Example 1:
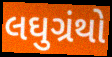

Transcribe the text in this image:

લઘુગ્રંથો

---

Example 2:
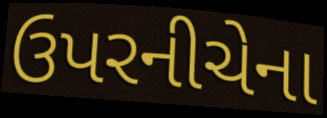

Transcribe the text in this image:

ઉપરનીચેના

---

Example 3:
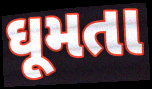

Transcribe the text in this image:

ઘૂમતા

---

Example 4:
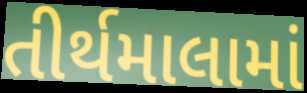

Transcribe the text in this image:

તીર્થમાલામાં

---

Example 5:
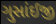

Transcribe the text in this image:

ગુસાંઈજી